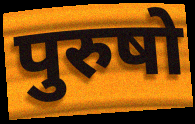
पुरुषो